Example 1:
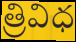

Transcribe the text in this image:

త్రివిధ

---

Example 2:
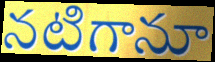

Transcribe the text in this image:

నటిగానూ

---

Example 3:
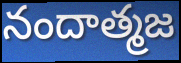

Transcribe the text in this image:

నందాత్మజ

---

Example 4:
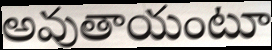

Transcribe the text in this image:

అవుతాయంటూ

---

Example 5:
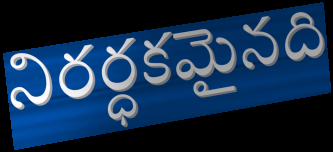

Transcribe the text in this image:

నిరర్ధకమైనది